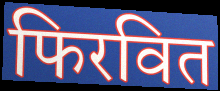
फिरवित